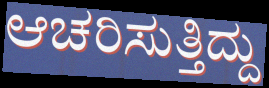
ಆಚರಿಸುತ್ತಿದ್ದು